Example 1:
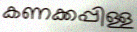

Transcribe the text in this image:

കണക്കപ്പിള്ള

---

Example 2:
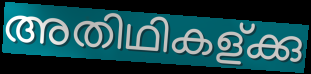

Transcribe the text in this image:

അതിഥികള്ക്കു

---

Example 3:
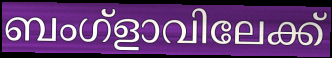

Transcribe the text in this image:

ബംഗ്ളാവിലേക്ക്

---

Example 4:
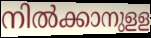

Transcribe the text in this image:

നിൽക്കാനുളള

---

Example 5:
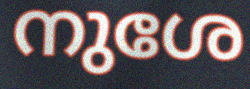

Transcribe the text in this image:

നുശേ